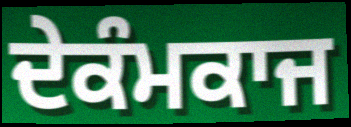
ਦੇਕੰਮਕਾਜ